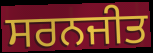
ਸਰਨਜੀਤ